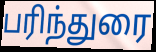
பரிந்துரை